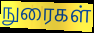
நுரைகள்